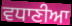
ਵਧਾਣੀਆ